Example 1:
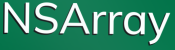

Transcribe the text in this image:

NSArray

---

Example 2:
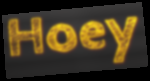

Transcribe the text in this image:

Hoey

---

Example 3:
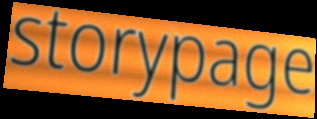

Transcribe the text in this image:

storypage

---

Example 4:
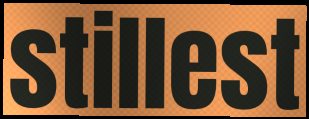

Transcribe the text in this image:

stillest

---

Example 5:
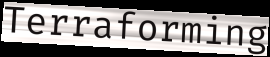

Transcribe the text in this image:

Terraforming